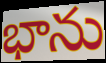
భాను